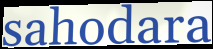
sahodara